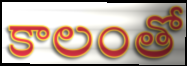
కాలంతో